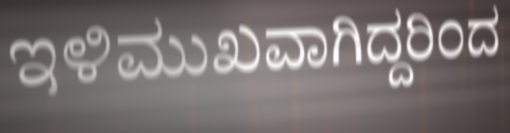
ಇಳಿಮುಖವಾಗಿದ್ದರಿಂದ